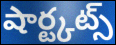
షార్ట్కట్స్